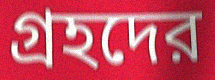
গ্রহদের